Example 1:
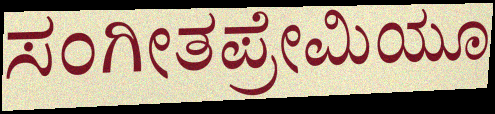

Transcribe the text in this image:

ಸಂಗೀತಪ್ರೇಮಿಯೂ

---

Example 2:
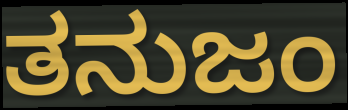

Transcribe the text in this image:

ತನುಜಂ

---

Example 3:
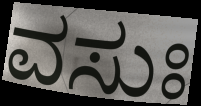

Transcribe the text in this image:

ವಸುಃ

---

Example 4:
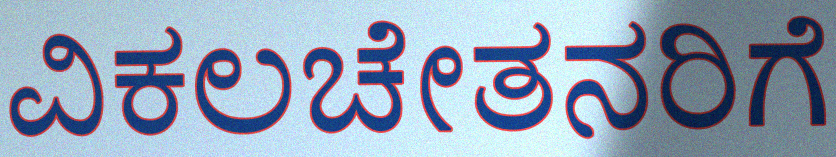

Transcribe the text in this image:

ವಿಕಲಚೇತನರಿಗೆ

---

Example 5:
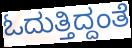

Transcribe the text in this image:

ಓದುತ್ತಿದ್ದಂತೆ